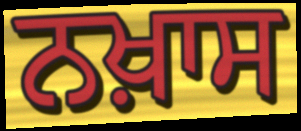
ਨਖ਼ਾਸ